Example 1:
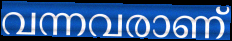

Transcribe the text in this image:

വന്നവരാണ്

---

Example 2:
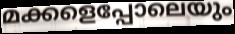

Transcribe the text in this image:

മക്കളെപ്പോലെയും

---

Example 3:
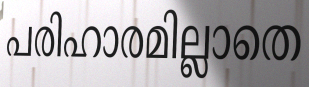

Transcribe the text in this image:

പരിഹാരമില്ലാതെ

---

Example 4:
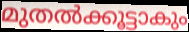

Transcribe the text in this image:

മുതൽക്കൂട്ടാകും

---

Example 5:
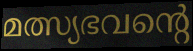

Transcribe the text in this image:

മത്സ്യഭവന്റെ